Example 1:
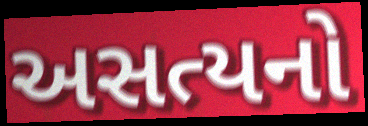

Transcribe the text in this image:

અસત્યનો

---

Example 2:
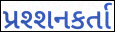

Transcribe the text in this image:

પ્રશ્શનકર્તા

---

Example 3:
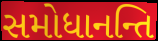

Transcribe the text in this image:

સમોધાનન્તિ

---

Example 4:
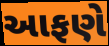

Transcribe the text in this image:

આફણે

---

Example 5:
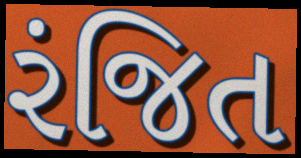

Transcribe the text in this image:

રંજિત